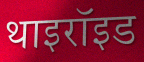
थाइरॉइड